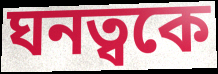
ঘনত্বকে